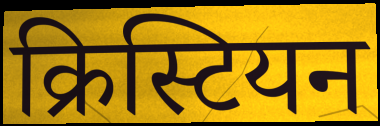
क्रिस्टियन